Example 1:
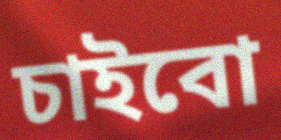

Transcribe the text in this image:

চাইবো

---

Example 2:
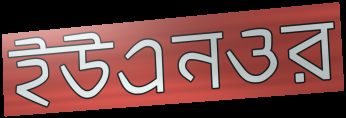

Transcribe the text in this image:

ইউএনওর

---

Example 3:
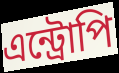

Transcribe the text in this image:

এন্ট্রোপি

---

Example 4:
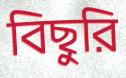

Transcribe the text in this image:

বিছুরি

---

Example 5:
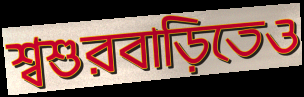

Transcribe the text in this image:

শ্বশুরবাড়িতেও